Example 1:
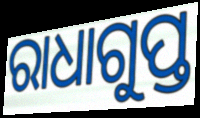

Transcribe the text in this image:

ରାଧାଗୁପ୍ତ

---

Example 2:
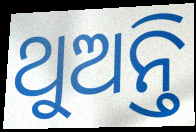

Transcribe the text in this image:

ଥୁଅନ୍ତି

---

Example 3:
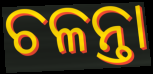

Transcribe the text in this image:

ଚଳନ୍ତା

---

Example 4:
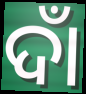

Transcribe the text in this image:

ଦାଁ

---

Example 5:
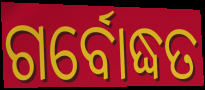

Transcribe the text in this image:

ଗର୍ବୋଦ୍ଧତ